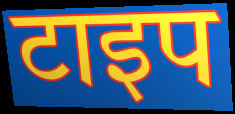
टाइप